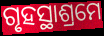
ଗୃହସ୍ଥାଶ୍ରମେ